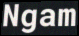
Ngam